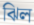
ঝিল